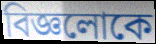
বিজ্ঞলোকে